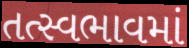
તત્સ્વભાવમાં